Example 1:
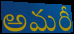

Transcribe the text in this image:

అమరీ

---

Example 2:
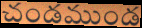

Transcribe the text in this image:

చండముండ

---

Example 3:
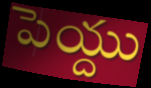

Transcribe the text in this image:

పెయ్దు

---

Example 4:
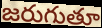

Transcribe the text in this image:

జరుగుతూ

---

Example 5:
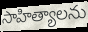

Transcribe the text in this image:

సాహిత్యాలను